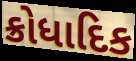
ક્રોધાદિક